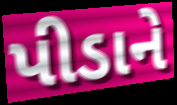
પીડાને